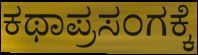
ಕಥಾಪ್ರಸಂಗಕ್ಕೆ